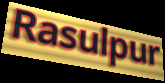
Rasulpur